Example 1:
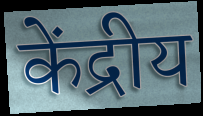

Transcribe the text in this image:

केंद्रीय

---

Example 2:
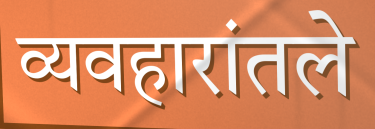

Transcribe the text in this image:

व्यवहारांतले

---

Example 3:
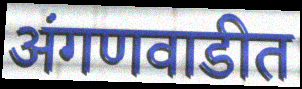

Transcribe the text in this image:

अंगणवाडीत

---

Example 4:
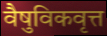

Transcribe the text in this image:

वैषुविकवृत्त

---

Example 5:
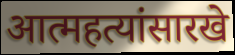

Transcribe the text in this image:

आत्महत्यांसारखे